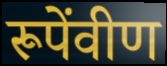
रूपेंवीण